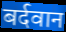
बर्दवान